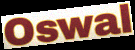
Oswal